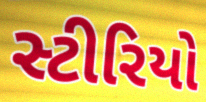
સ્ટીરિયો